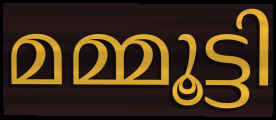
മമ്മൂട്ടി